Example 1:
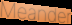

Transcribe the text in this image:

Meander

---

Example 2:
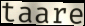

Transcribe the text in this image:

taare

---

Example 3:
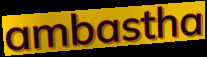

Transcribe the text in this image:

ambastha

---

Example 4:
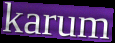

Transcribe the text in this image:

karum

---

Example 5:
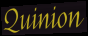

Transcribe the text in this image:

Quinion